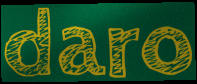
daro